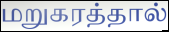
மறுகரத்தால்